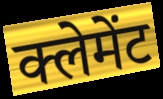
क्लेमेंट